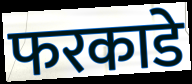
फरकाडे